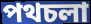
পথচলা